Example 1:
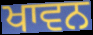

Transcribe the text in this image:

ਖਾਵਨ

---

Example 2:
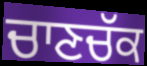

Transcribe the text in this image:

ਚਾਣਚੱਕ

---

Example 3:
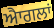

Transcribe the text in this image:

ਐਾਗਲਾਂ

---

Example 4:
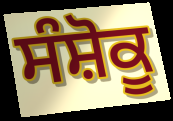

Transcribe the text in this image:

ਸੰਸ਼ੋਕੂ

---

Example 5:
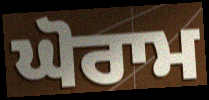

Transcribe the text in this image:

ਘੋਰਾਮ